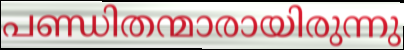
പണ്ഡിതന്മാരായിരുന്നു